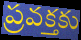
ప్రవక్తకు